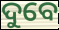
ଦୁବେ